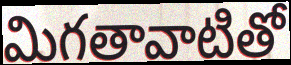
మిగతావాటితో